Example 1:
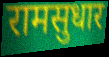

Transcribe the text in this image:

रामसुधार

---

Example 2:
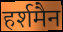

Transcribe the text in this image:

हर्शमैन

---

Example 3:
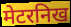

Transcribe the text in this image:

मेटरनिख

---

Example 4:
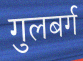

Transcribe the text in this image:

गुलबर्ग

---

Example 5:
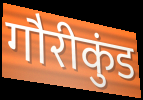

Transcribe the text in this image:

गौरीकुंड